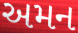
અમન